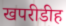
खपरीडीह